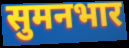
सुमनभार